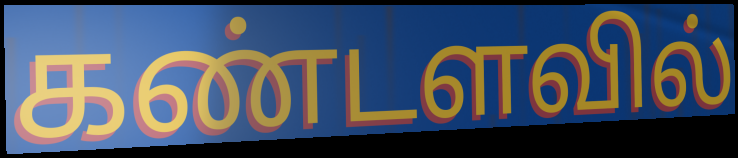
கண்டளவில்